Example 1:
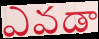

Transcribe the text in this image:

ఎవడా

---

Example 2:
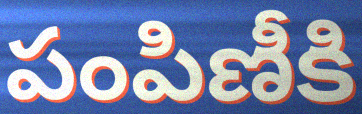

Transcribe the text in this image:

పంపిణీకి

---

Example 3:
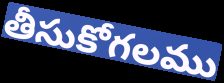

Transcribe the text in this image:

తీసుకోగలము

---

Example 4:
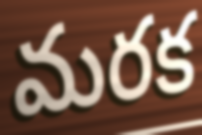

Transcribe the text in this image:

మరక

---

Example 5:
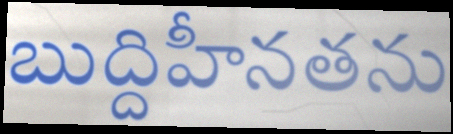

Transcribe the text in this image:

బుద్దిహీనతను